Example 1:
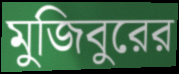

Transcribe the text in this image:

মুজিবুরের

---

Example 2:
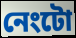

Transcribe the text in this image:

নেংটো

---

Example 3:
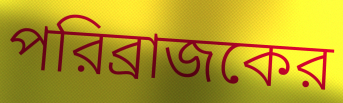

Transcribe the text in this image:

পরিব্রাজকের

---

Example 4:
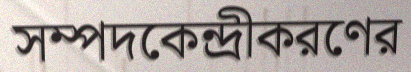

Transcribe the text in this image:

সম্পদকেন্দ্রীকরণের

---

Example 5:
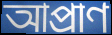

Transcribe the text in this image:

আপ্রাণ